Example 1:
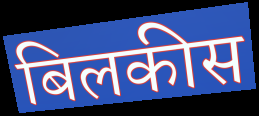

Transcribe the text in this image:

बिलकीस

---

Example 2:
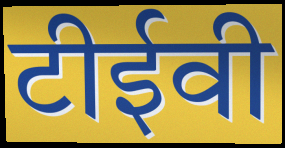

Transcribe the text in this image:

टीईवी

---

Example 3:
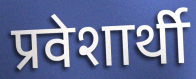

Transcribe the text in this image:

प्रवेशार्थी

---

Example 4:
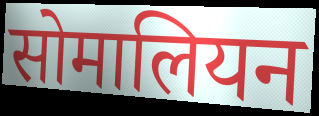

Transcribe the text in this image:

सोमालियन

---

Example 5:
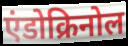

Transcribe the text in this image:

एंडोक्रिनोल